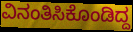
ವಿನಂತಿಸಿಕೊಂಡಿದ್ದ